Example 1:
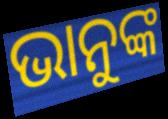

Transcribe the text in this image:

ଭାନୁଙ୍କ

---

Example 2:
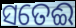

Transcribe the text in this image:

ସତେଈ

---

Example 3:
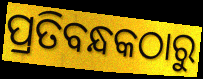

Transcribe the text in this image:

ପ୍ରତିବନ୍ଧକଠାରୁ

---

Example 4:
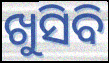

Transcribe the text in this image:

ଖୁସିବି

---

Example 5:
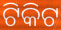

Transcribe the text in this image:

ଟିକିଟ